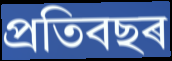
প্ৰতিবছৰ